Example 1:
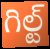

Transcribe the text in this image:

గిల్ట్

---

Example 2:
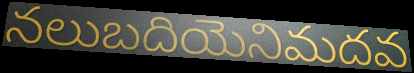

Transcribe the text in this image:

నలుబదియెనిమదవ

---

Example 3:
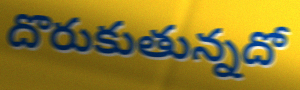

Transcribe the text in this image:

దొరుకుతున్నదో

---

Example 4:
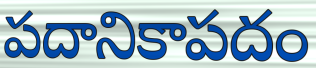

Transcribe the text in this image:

పదానికాపదం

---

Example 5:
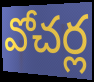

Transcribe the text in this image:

వోచర్ల